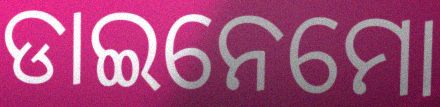
ଡାଇନେମୋ